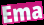
Ema